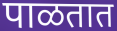
पाळतात